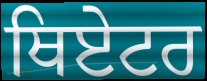
ਥਿਏਟਰ